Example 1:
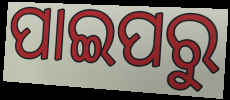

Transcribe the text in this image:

ପାଇପରୁ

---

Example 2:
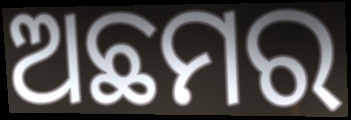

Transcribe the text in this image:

ଅଛମର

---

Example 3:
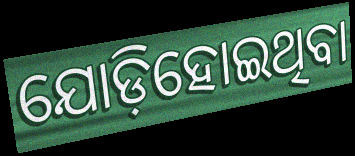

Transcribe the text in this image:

ଯୋଡ଼ିହୋଇଥିବା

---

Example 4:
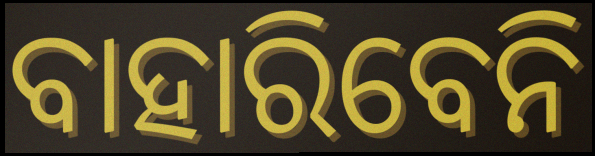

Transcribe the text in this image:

ବାହାରିବେନି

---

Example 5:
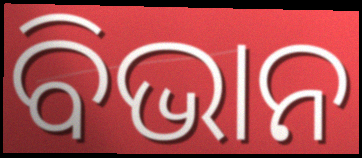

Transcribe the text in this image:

ବିଭାନ